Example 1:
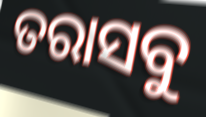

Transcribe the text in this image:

ତରାସବୁ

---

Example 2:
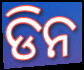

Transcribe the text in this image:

ଡିନ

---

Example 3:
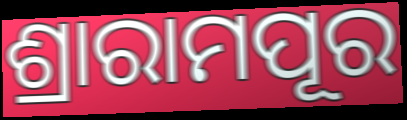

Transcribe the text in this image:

ଶ୍ରାରାମପୂର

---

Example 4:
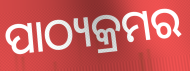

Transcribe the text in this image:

ପାଠ୍ୟକ୍ରମର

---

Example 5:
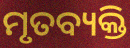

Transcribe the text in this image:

ମୃତବ୍ୟକ୍ତି